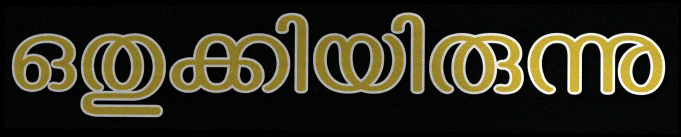
ഒതുക്കിയിരുന്നു